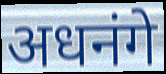
अधनंगे